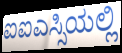
ಐಐಎಸ್ಸಿಯಲ್ಲಿ